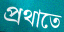
প্ৰথাতে